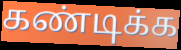
கண்டிக்க